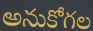
అనుకోగల